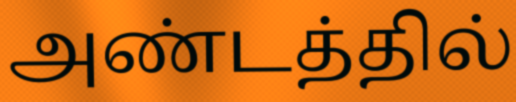
அண்டத்தில்